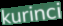
kurinci